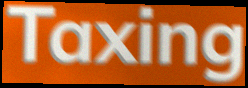
Taxing